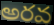
అరవ